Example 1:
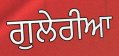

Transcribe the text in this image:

ਗੁਲੇਰੀਆ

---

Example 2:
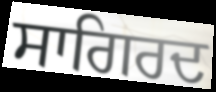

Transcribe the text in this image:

ਸਾਗਿਰਦ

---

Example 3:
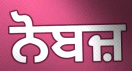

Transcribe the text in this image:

ਨੋਬਜ਼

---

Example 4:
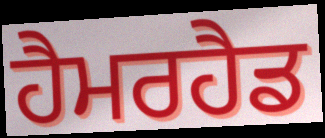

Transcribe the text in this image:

ਹੈਮਰਹੈਡ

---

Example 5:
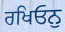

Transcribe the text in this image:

ਰਖਿਓਨੁ